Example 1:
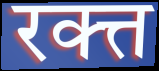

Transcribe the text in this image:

रक्त्त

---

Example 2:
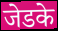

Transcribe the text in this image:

जेडके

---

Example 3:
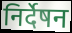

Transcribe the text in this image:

निर्देषन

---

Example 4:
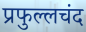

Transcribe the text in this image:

प्रफुल्लचंद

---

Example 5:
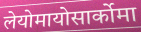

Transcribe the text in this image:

लेयोमायोसार्कोमा